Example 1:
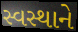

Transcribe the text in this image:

સ્વસ્થાને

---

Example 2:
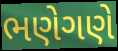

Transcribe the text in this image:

ભણેગણે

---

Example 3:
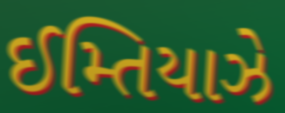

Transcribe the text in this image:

ઈમ્તિયાઝે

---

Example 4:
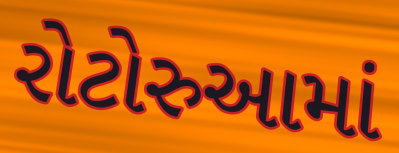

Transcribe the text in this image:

રોટોરુઆમાં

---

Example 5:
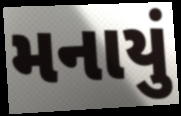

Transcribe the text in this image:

મનાયું